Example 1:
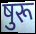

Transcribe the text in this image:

षुरू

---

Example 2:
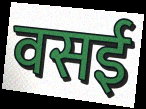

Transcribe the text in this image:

वसई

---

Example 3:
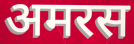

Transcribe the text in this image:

अमरस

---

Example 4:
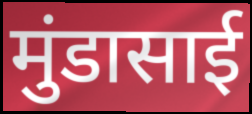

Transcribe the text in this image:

मुंडासाई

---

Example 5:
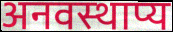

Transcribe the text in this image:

अनवस्थाप्य